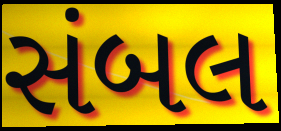
સંબલ